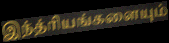
இந்த்ரியங்களையும்